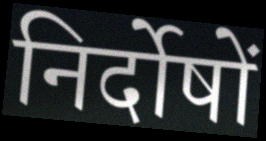
निर्दोषों